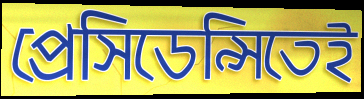
প্রেসিডেন্সিতেই